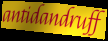
antidandruff